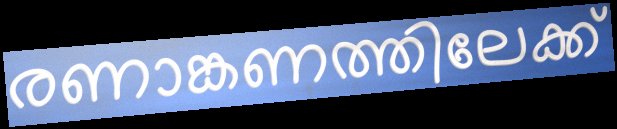
രണാങ്കണത്തിലേക്ക്